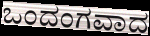
ಒಂದಂಗವಾದ